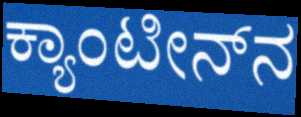
ಕ್ಯಾಂಟೀನ್‌ನ